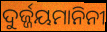
ଦୁର୍ଜ୍ଜୟମାନିନୀ